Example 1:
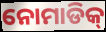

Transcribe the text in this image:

ନୋମାଡିକ୍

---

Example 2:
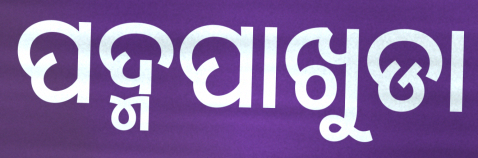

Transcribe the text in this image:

ପଦ୍ମପାଖୁଡା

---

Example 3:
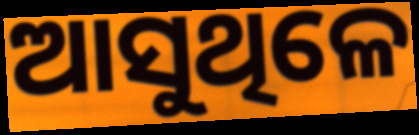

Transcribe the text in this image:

ଆସୁଥିଳେ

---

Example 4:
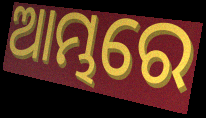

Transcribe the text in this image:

ଆମ୍ଭରେ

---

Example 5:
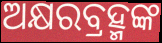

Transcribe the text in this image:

ଅକ୍ଷରବ୍ରହ୍ମଙ୍କ